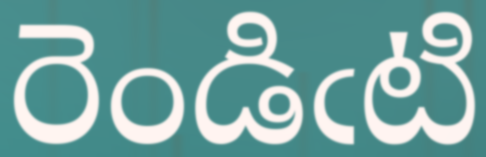
రెండిఁటి